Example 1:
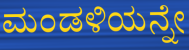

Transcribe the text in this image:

ಮಂಡಳಿಯನ್ನೇ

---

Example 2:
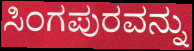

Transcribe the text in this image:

ಸಿಂಗಪುರವನ್ನು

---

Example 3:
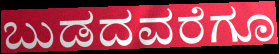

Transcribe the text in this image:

ಬುಡದವರೆಗೂ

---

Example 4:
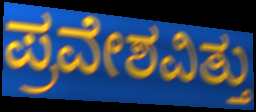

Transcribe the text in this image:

ಪ್ರವೇಶವಿತ್ತು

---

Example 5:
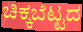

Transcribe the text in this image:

ಚಿಕ್ಕಬೆಟ್ಟದ